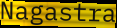
Nagastra